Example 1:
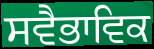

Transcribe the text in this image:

ਸਵੈਭਾਵਿਕ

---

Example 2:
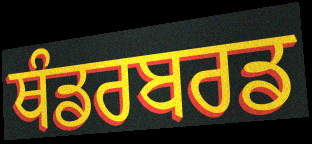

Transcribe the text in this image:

ਥੰਡਰਬਰਡ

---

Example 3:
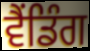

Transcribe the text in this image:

ਵੈਂਡਿੰਗ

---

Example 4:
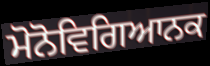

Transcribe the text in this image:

ਮੋਨੋਵਿਗਿਆਨਕ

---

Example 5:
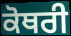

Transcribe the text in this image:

ਕੋਥਰੀ